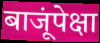
बाजूंपेक्षा